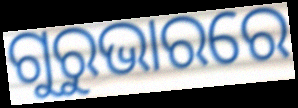
ଗୁରୁଭାରରେ